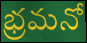
భ్రమనో